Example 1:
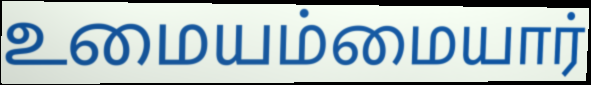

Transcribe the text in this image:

உமையம்மையார்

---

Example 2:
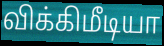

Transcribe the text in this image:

விக்கிமீடியா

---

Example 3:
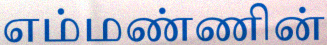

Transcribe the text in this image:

எம்மண்ணின்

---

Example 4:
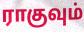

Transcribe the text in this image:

ராகுவும்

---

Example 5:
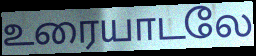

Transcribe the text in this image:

உரையாடலே